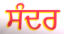
ਸੰਦਰ